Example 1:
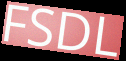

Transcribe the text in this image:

FSDL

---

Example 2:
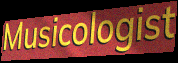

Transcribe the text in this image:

Musicologist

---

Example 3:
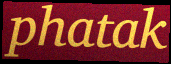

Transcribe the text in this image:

phatak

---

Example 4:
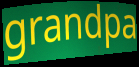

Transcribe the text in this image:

grandpa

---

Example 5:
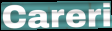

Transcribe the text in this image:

Careri